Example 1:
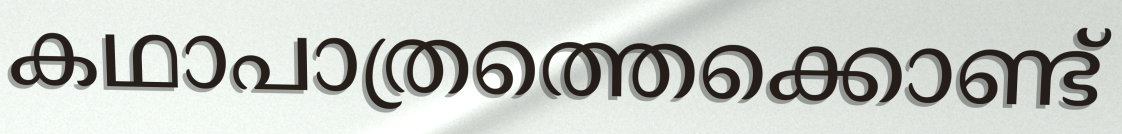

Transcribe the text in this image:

കഥാപാത്രത്തെക്കൊണ്ട്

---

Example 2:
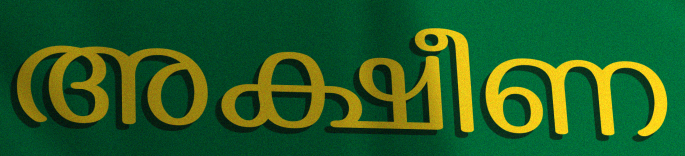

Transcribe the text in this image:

അക്ഷീണ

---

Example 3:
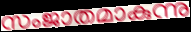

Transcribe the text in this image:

സംജാതമാകുന്നു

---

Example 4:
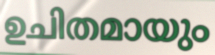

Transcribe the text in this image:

ഉചിതമായും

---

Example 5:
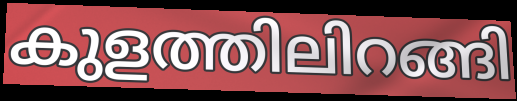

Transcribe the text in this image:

കുളത്തിലിറങ്ങി